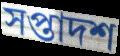
সপ্তাদশ